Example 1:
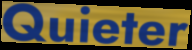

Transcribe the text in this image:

Quieter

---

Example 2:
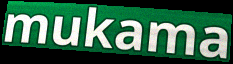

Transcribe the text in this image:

mukama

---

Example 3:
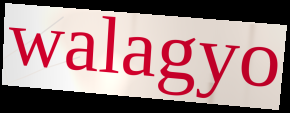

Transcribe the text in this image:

walagyo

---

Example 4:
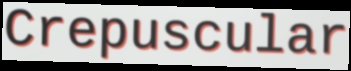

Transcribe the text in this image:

Crepuscular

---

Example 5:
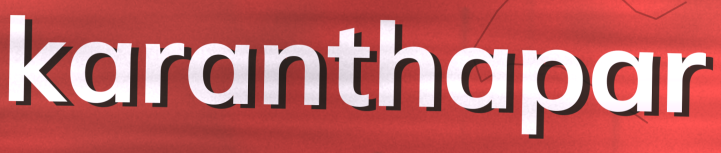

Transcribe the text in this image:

karanthapar